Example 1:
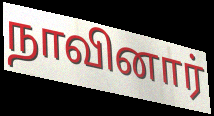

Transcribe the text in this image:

நாவினார்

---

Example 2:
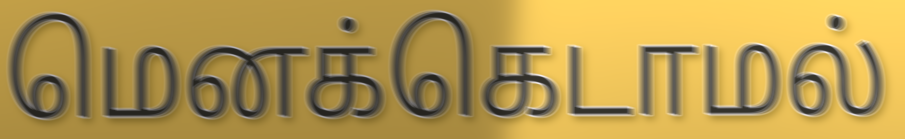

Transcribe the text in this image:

மெனக்கெடாமல்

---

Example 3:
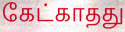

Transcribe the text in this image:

கேட்காதது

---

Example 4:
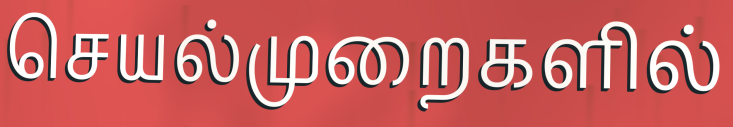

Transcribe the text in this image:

செயல்முறைகளில்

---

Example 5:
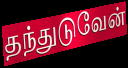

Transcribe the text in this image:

தந்துடுவேன்